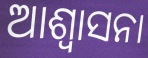
ଆଶ୍ଵାସନା